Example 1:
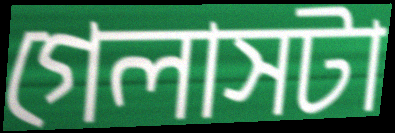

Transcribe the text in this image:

গেলাসটা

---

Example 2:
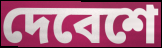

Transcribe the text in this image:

দেবেশে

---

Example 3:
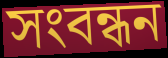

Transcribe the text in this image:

সংবন্ধন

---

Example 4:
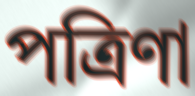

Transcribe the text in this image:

পত্রিণা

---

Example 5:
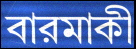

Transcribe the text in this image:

বারমাকী